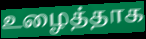
உழைத்தாக